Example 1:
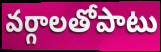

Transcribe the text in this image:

వర్గాలతోపాటు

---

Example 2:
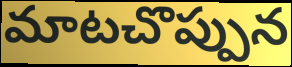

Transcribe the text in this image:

మాటచొప్పున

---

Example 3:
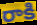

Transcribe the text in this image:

రాకి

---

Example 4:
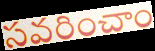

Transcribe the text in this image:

సవరించాం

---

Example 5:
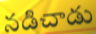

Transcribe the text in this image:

నడిచాడు